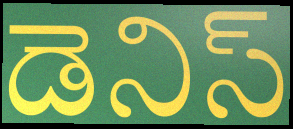
డెనిస్